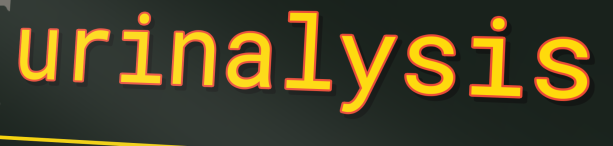
urinalysis